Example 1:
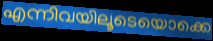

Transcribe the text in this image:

എന്നിവയിലൂടെയൊക്കെ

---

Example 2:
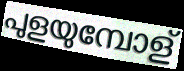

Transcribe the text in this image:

പുളയുമ്പോള്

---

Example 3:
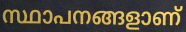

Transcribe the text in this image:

സ്ഥാപനങ്ങളാണ്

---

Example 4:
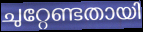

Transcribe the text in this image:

ചുറ്റേണ്ടതായി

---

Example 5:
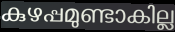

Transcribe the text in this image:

കുഴപ്പമുണ്ടാകില്ല